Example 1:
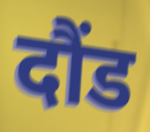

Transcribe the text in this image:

दौंड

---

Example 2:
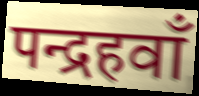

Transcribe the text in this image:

पन्द्रहवाँ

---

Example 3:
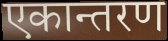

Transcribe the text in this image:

एकान्तरण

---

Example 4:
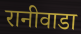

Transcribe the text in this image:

रानीवाडा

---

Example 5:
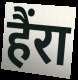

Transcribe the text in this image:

हैंरा